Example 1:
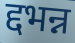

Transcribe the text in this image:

द्दभन्न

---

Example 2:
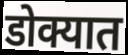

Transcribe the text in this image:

डोक्यात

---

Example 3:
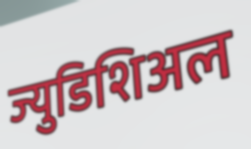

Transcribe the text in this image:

ज्युडिशिअल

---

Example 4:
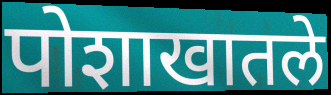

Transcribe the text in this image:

पोशाखातले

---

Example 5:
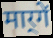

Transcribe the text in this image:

मार्गें